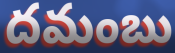
దమంబు